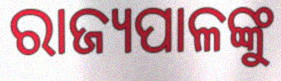
ରାଜ୍ୟପାଳଙ୍କୁ